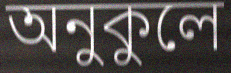
অনুকুলে